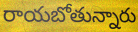
రాయబోతున్నారు